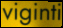
viginti